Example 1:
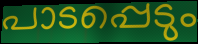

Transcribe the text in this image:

പാടപ്പെടും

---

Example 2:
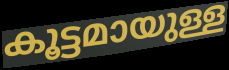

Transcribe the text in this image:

കൂട്ടമായുള്ള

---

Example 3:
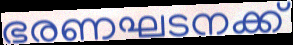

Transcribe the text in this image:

ഭരണഘടനക്ക്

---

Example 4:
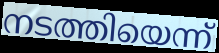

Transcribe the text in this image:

നടത്തിയെന്ന്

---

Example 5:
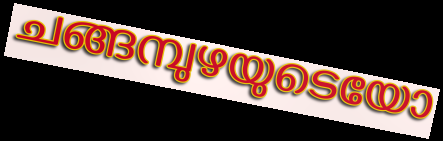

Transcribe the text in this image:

ചങ്ങമ്പുഴയുടെയോ